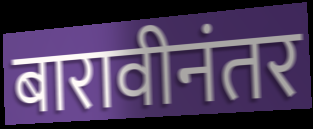
बारावीनंतर